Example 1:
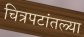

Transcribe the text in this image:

चित्रपटांतल्या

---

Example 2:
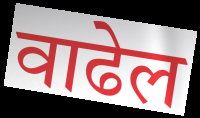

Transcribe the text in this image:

वाढेल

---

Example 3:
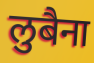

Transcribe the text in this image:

लुबैना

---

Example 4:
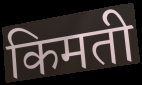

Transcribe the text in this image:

किमती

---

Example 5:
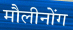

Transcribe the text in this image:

मौलीनोंग